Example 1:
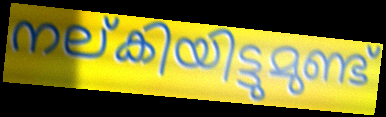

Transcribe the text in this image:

നല്കിയിട്ടുമുണ്ട്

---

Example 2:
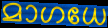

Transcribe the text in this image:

മാഗധേ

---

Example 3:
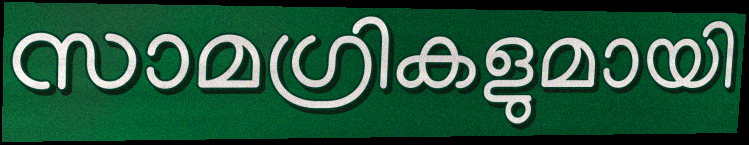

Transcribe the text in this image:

സാമഗ്രികളുമായി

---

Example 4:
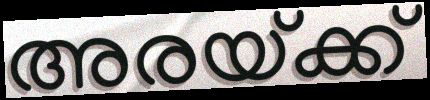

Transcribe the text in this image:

അരയ്‌ക്ക്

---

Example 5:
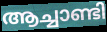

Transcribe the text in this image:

ആച്ചാണ്ടി